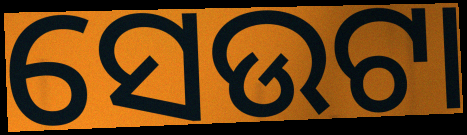
ସେଉଟା